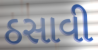
ઠસાવી